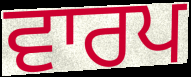
ਵਾਰਪ